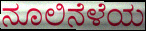
ನೂಲಿನೆಳೆಯ